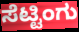
ಸೆಟ್ಟಿಂಗು